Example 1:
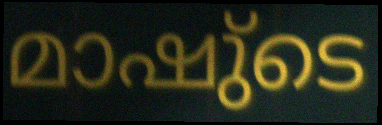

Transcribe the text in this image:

മാഷു്ടെ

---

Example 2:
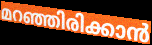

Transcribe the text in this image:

മറഞ്ഞിരിക്കാൻ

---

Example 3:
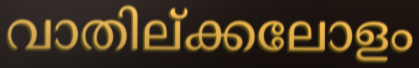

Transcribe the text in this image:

വാതില്ക്കലോളം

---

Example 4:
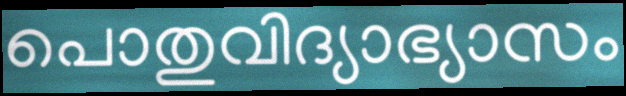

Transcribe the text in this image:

പൊതുവിദ്യാഭ്യാസം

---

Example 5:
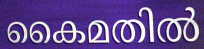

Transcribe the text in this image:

കൈമതിൽ